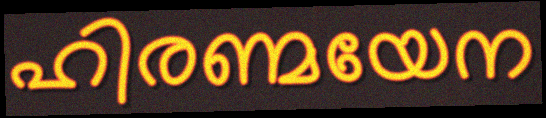
ഹിരണ്മയേന